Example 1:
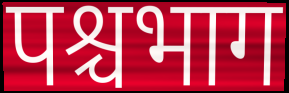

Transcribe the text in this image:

पश्चभाग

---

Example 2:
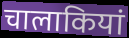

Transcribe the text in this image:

चालाकियां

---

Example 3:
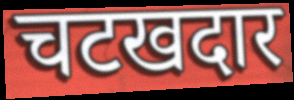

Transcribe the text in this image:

चटखदार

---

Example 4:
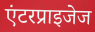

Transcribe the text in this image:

एंटरप्राइजेज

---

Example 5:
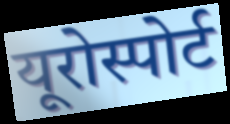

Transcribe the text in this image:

यूरोस्पोर्ट